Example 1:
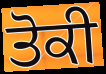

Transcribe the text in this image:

ਤੋਕੀ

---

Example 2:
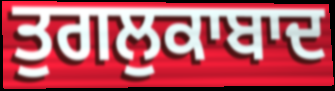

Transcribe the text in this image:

ਤੁਗਲੁਕਾਬਾਦ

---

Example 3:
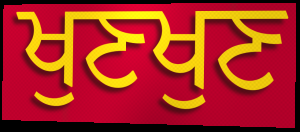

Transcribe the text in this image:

ਖੁਣਖੁਣ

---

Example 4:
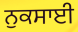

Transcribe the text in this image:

ਨੁਕਸਾਈ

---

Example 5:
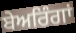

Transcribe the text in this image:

ਬੇਅਰਿੰਗਾਂ